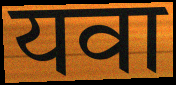
यवा